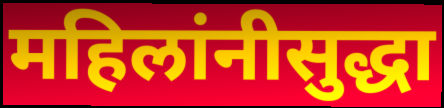
महिलांनीसुद्धा